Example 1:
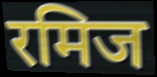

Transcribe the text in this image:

रमिज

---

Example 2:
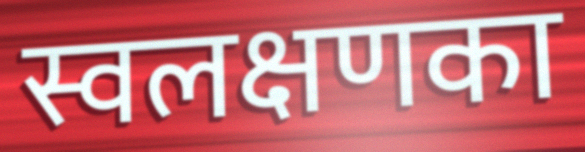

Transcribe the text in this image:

स्वलक्षणका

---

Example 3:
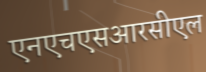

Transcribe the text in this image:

एनएचएसआरसीएल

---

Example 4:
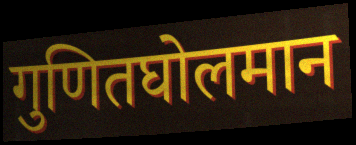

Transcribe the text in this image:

गुणितघोलमान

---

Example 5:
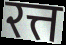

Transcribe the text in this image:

रत्त